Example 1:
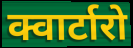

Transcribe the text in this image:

क्वार्टारो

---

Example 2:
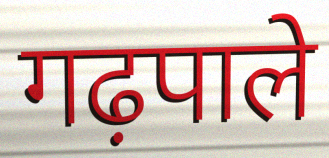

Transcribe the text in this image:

गढ़पाले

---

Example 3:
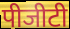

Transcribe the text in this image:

पीजीटी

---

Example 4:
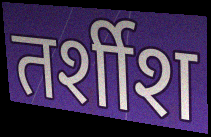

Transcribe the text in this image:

तर्शीश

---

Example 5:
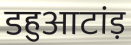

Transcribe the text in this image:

डहुआटांड़